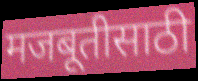
मजबूतीसाठी